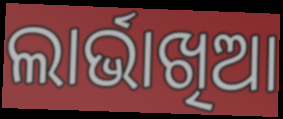
ଲାର୍ଭାଖିଆ